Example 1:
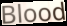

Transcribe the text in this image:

Blood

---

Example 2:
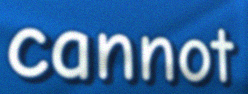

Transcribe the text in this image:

cannot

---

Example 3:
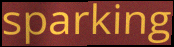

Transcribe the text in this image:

sparking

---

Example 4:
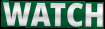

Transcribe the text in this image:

WATCH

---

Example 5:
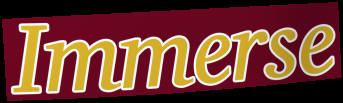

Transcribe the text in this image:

Immerse